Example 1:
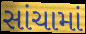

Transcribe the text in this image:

સાંચામાં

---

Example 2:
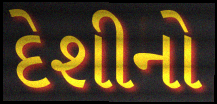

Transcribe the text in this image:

દેશીનો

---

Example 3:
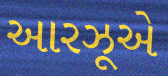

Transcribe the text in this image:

આરઝૂએ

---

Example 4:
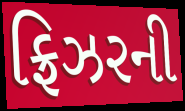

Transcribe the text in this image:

ફ્રિઝરની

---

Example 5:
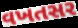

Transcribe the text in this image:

વખતસર